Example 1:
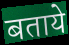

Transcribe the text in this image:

बताये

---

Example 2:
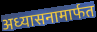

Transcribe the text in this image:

अध्यासनामार्फत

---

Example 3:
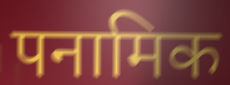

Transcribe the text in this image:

पनामिक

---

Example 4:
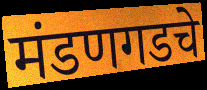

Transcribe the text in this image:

मंडणगडचे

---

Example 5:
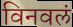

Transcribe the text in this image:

विनवलं